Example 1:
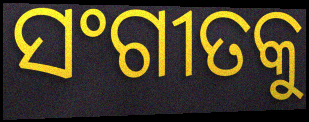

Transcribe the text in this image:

ସଂଗୀତକୁ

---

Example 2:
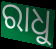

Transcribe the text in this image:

ରାଧୁ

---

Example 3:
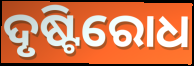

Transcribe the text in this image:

ଦୃଷ୍ଟିରୋଧ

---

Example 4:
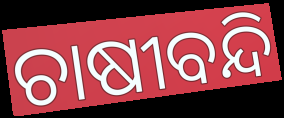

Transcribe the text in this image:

ଚାଷୀବନ୍ଦି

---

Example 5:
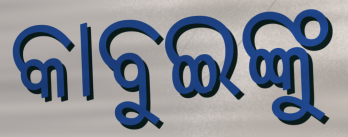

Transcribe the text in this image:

କାବୁଇଙ୍କୁ